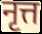
नृत्त